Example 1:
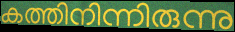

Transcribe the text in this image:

കത്തിനിന്നിരുന്നു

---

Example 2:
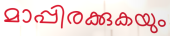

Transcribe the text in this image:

മാപ്പിരക്കുകയും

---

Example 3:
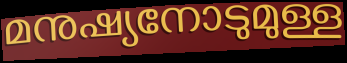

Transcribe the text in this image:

മനുഷ്യനോടുമുള്ള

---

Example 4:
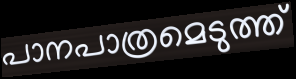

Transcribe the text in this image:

പാനപാത്രമെടുത്ത്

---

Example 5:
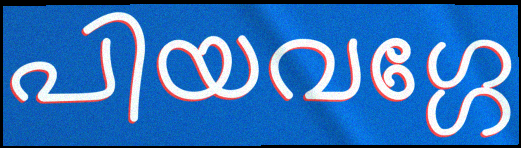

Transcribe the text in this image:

പിയവഗ്ഗേ